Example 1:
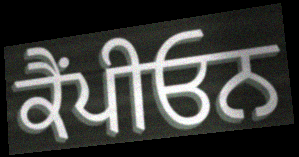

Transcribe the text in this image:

ਕੈਂਪੀਓਨ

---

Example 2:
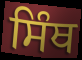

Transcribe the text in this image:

ਸਿੰਥ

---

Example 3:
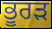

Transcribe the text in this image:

ਭੂਰੜ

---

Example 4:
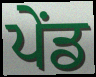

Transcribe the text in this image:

ਪੇਂਡ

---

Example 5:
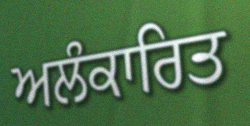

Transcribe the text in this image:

ਅਲੰਕਾਰਿਤ